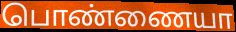
பொண்ணையா